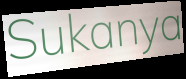
Sukanya